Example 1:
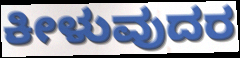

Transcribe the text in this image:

ಕೀಳುವುದರ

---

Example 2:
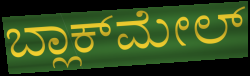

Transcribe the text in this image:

ಬ್ಲಾಕ್‌ಮೇಲ್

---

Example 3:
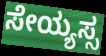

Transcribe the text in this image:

ಸೇಯ್ಯಸ್ಸ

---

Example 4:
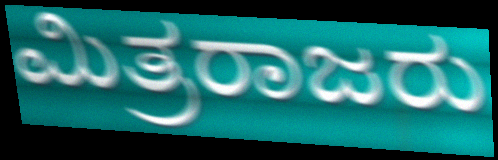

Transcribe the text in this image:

ಮಿತ್ರರಾಜರು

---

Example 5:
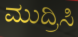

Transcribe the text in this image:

ಮುದ್ರಿಸಿ